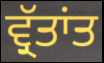
ਵ੍ਰੱਤਾਂਤ